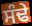
ਸੰਢੇ